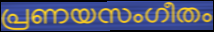
പ്രണയസംഗീതം